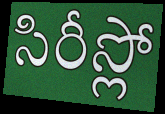
సిరీస్లో